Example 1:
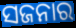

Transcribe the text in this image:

ସଜନାର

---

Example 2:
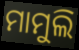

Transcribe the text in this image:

ମାମୁଲି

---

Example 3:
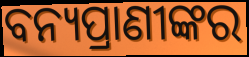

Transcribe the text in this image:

ବନ୍ୟପ୍ରାଣୀଙ୍କର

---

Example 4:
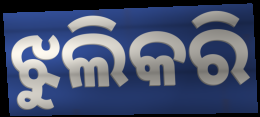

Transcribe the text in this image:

ଝୁଲିକରି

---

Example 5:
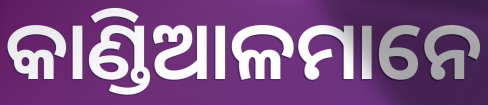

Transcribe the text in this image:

କାଣ୍ଡିଆଳମାନେ